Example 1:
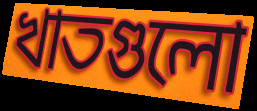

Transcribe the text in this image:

খাতগুলো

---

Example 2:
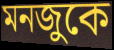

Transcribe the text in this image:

মনজুকে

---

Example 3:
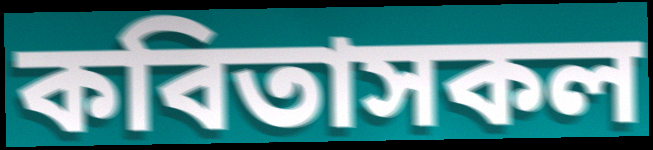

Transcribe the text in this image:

কবিতাসকল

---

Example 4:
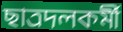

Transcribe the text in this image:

ছাত্রদলকর্মী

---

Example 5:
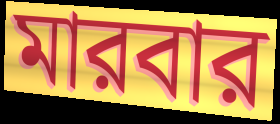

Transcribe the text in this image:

মারবার